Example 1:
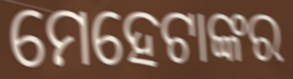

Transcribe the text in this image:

ମେହେଟାଙ୍କର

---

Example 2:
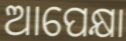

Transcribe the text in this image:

ଆପେକ୍ଷା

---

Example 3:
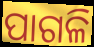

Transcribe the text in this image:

ପାଗଳି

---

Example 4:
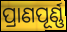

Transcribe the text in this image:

ପ୍ରାଣପୂର୍ଣ୍ଣ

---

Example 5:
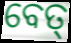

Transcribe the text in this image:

ବେତ୍